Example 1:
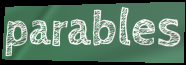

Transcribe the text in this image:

parables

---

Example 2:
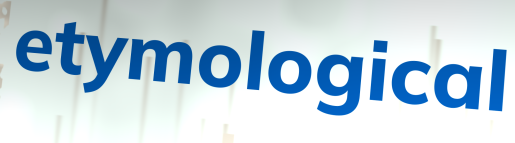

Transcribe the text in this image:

etymological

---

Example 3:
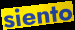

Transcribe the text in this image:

siento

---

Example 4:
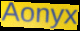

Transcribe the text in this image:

Aonyx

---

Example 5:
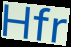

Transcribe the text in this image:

Hfr